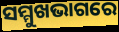
ସମ୍ମୁଖଭାଗରେ